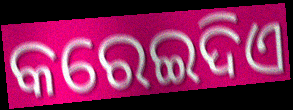
କରେଇଦିଏ